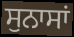
ਸੁਨਾਸਾਂ